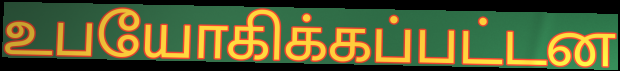
உபயோகிக்கப்பட்டன